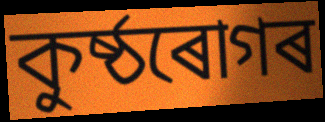
কুষ্ঠৰোগৰ